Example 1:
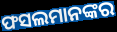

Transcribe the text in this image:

ଫସଲମାନଙ୍କର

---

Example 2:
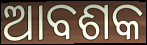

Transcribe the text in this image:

ଆବଶକ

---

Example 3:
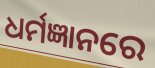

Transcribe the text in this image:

ଧର୍ମଜ୍ଞାନରେ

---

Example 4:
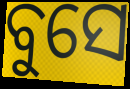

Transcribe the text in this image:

ବୁସେ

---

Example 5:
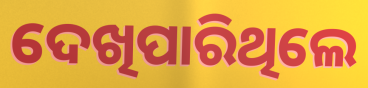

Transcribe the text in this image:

ଦେଖିପାରିଥିଲେ